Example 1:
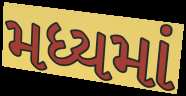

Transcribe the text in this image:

મધ્યમાં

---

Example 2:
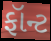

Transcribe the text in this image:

ફૉન્ટ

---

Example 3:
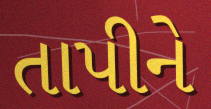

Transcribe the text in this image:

તાપીને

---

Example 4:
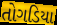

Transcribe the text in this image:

તોગડિયા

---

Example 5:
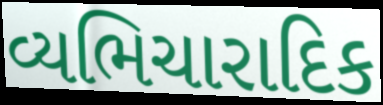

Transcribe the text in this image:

વ્યભિચારાદિક